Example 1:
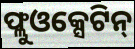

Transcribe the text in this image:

ଫ୍ଲୁଓକ୍ସେଟିନ୍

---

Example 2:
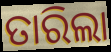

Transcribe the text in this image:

ତାରିଲା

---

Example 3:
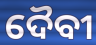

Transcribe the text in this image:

ଦୈବୀ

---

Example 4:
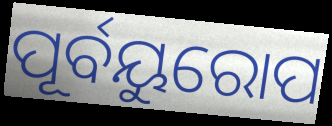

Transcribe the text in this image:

ପୂର୍ବୟୁରୋପ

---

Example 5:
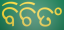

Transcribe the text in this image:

ବିଚିତଂ